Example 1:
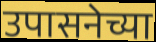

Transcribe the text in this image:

उपासनेच्या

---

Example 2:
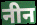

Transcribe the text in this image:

नीन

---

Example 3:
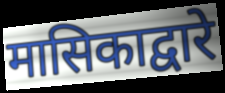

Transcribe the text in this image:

मासिकाद्वारे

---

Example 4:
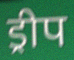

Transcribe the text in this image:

ड्रीप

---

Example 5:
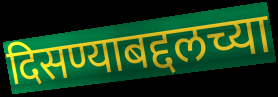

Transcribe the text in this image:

दिसण्याबद्दलच्या